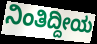
ನಿಂತಿದ್ದೀಯ